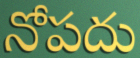
నోపదు